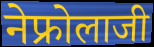
नेफ्रोलाजी